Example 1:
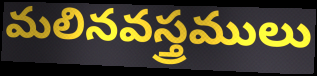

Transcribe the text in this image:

మలినవస్త్రములు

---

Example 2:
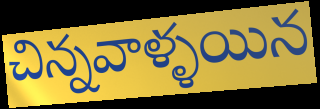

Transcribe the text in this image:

చిన్నవాళ్ళయిన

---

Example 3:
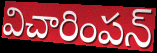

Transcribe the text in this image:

విచారింపన్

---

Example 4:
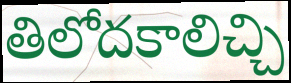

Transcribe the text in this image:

తిలోదకాలిచ్చి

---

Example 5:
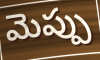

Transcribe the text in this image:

మెప్పు